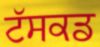
ਟੱਸਕਡ